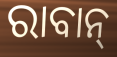
ରାବାନ୍